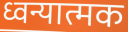
ध्वन्यात्मक